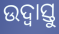
ଉଦ୍ବାସ୍ତୁ